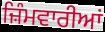
ਜ਼ਿੰਮਵਾਰੀਆਂ